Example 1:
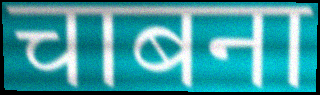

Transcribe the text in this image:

चाबना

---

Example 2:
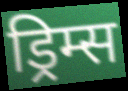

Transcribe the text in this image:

ड्रिम्स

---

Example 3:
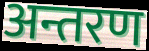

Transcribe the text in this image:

अन्तरण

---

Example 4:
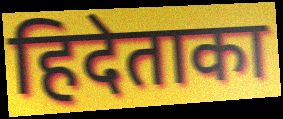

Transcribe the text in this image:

हिदेताका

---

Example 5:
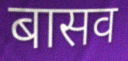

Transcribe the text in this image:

बासव